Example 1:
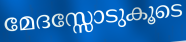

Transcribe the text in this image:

മേദസ്സോടുകൂടെ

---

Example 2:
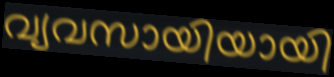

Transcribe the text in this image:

വ്യവസായിയായി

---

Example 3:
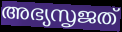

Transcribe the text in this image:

അഭ്യസൃജത്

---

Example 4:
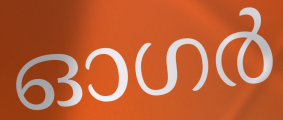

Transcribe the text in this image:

ഓഗർ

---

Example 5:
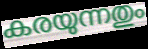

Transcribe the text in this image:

കരയുന്നതും